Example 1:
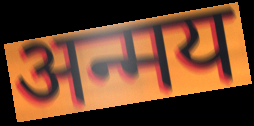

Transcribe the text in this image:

अन्मय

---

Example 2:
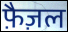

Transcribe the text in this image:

फ़ैज़ल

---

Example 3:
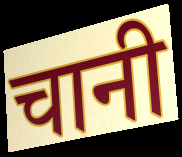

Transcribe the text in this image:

चानी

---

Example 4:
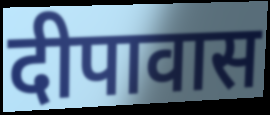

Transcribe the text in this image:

दीपावास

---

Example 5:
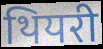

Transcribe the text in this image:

थियरी